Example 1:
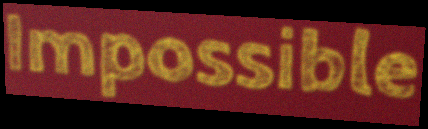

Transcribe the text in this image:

Impossible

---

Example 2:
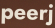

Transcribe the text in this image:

peerj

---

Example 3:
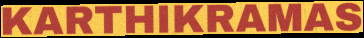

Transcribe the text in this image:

KARTHIKRAMAS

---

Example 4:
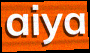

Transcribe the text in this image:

aiya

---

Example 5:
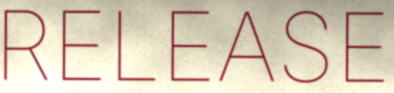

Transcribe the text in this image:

RELEASE